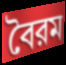
বৈরম